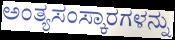
ಅಂತ್ಯಸಂಸ್ಕಾರಗಳನ್ನು